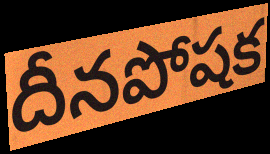
దీనపోషక